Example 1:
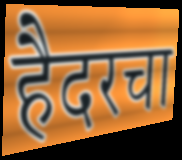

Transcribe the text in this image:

हैदरचा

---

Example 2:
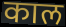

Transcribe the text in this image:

काल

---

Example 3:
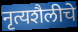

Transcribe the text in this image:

नृत्यशैलीचे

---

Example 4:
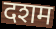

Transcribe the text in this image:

दशम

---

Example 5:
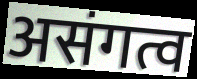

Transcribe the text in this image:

असंगत्व